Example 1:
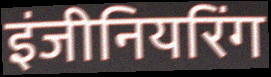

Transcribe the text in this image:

इंजीनियरिंग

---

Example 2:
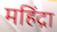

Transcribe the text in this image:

महिंद्रा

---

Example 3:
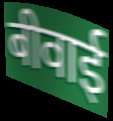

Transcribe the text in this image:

बीवाई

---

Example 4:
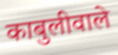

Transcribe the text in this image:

काबुलीवाले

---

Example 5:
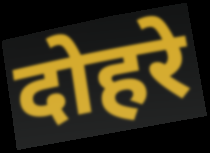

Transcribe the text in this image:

दोहरे